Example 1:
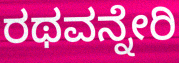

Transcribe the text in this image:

ರಥವನ್ನೇರಿ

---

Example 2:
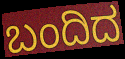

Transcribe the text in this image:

ಬಂದಿದ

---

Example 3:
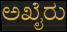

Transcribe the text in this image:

ಅಖೈರು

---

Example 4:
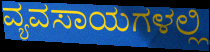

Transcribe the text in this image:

ವ್ಯವಸಾಯಗಳಲ್ಲಿ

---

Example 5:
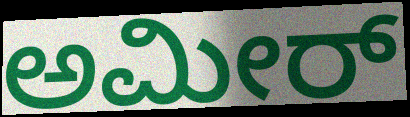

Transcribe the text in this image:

ಅಮೀರ್